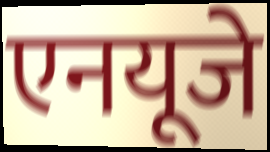
एनयूजे